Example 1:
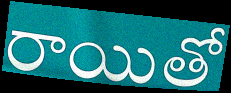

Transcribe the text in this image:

రాయితో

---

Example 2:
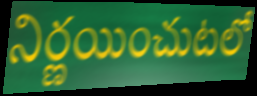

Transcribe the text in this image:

నిర్ణయించుటలో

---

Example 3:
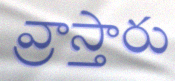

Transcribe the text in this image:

వ్రాస్తారు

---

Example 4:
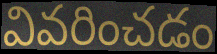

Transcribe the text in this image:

వివరించడం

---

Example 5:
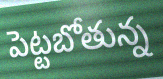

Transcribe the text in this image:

పెట్టబోతున్న